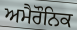
ਅਮੈਰੌਨਿਕ